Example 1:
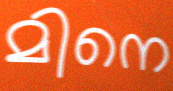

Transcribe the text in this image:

മിനെ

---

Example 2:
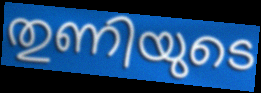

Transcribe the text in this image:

തുണിയുടെ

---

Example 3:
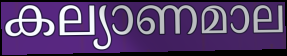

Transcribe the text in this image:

കല്യാണമാല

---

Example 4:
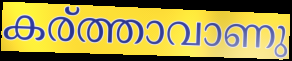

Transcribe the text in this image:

കര്ത്താവാണു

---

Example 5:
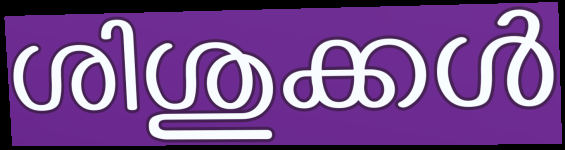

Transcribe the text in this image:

ശിശുക്കൾ